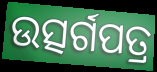
ଉତ୍ସର୍ଗପତ୍ର